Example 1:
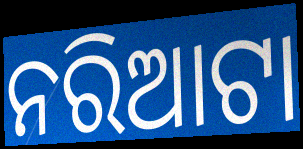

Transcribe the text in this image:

ନରିଆଟା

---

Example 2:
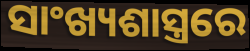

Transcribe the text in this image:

ସାଂଖ୍ୟଶାସ୍ତ୍ରରେ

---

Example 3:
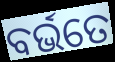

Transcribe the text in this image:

ବର୍ଭତେ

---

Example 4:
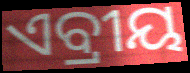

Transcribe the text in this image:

ଏବ୍ରୀୟ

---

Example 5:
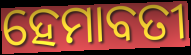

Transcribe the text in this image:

ହେମାବତୀ